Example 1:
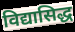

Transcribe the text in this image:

विद्यासिद्ध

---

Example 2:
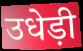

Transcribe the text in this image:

उधेड़ी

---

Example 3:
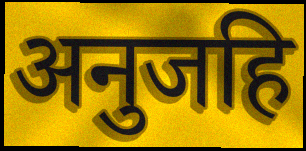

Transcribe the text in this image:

अनुजहि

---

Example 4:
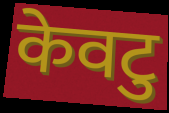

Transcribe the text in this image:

केवटु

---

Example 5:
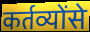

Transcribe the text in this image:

कर्तव्योंसे